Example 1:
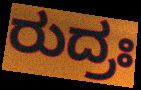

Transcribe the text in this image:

ರುದ್ರಃ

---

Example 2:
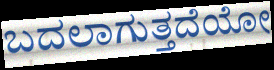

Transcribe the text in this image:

ಬದಲಾಗುತ್ತದೆಯೋ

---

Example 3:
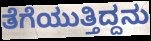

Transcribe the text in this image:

ತೆಗೆಯುತ್ತಿದ್ದನು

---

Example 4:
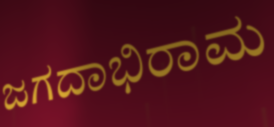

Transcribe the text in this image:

ಜಗದಾಭಿರಾಮ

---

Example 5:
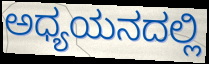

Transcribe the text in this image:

ಅಧ್ಯಯನದಲ್ಲಿ